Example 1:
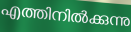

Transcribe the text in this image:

എത്തിനിൽക്കുന്നു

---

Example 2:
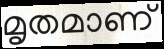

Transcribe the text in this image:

മൃതമാണ്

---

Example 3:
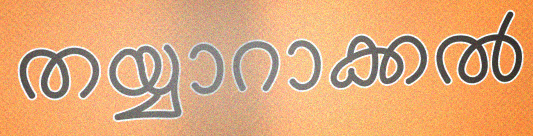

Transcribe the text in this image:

തയ്യാറാക്കൽ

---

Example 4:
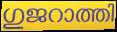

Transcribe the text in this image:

ഗുജറാത്തി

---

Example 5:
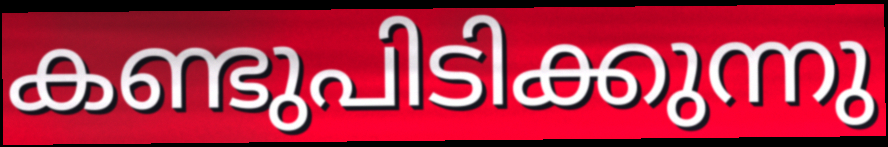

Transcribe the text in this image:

കണ്ടുപിടിക്കുന്നു